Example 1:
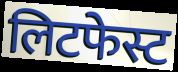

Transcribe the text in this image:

लिटफेस्ट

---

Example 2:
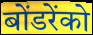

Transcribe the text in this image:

बोंडरेंको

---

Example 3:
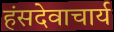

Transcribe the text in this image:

हंसदेवाचार्य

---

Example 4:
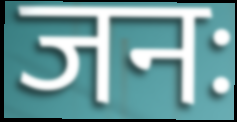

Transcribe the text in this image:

जनः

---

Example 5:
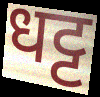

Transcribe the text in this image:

धट्ट